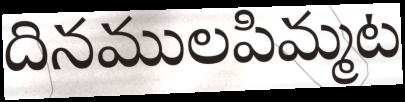
దినములపిమ్మట